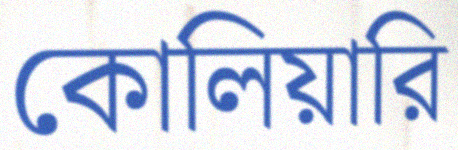
কোলিয়ারি